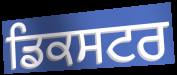
ਡਿਕਸਟਰ